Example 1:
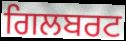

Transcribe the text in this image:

ਗਿਲਬਰਟ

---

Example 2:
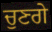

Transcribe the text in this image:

ਚੁਣਗੇ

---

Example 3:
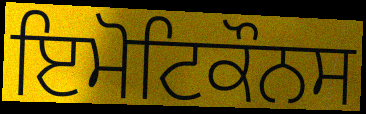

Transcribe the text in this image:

ਇਮੋਟਿਕੌਨਸ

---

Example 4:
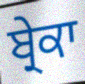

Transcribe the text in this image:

ਬ੍ਰੇਕਾ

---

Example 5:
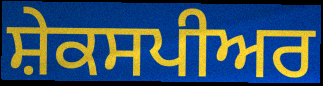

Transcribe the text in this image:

ਸ਼ੇਕਸਪੀਅਰ